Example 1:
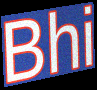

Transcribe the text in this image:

Bhi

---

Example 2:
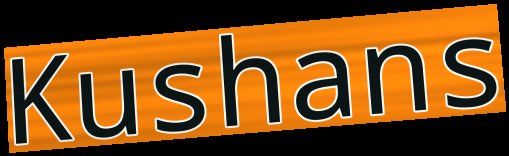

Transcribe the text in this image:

Kushans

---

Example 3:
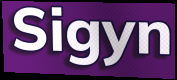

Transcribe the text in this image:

Sigyn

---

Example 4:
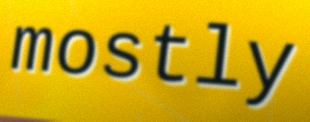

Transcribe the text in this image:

mostly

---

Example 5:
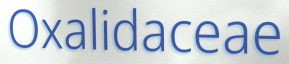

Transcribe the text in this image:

Oxalidaceae